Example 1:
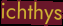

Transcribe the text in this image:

ichthys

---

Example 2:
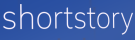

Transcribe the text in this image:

shortstory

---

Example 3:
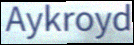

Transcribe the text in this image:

Aykroyd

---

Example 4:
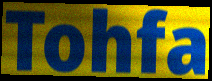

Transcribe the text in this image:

Tohfa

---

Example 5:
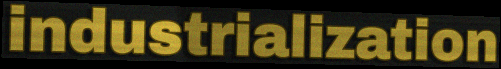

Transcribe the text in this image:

industrialization